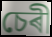
চেৰী